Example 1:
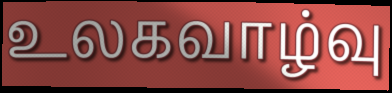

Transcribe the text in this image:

உலகவாழ்வு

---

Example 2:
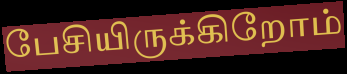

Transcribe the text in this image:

பேசியிருக்கிறோம்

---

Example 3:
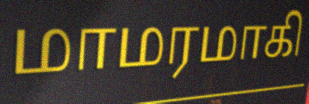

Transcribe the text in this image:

மாமரமாகி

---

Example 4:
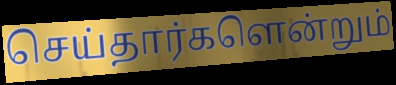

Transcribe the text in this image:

செய்தார்களென்றும்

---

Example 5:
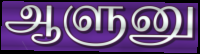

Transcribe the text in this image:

ஆளுனு